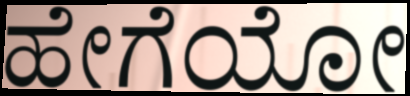
ಹೇಗೆಯೋ